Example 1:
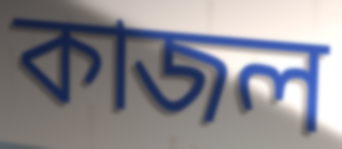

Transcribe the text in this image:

কাজল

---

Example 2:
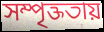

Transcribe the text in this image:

সম্পৃক্ততায়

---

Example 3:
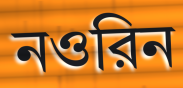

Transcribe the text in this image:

নওরিন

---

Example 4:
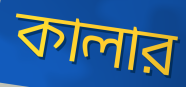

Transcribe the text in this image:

কালার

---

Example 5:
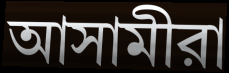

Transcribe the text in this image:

আসামীরা